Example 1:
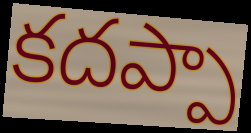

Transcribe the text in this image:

కదప్పా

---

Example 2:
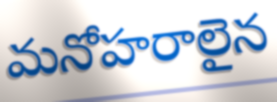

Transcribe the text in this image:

మనోహరాలైన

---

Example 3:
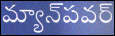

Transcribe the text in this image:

మ్యాన్‌పవర్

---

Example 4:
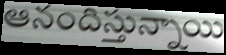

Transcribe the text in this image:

ఆనందిస్తున్నాయి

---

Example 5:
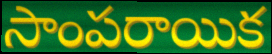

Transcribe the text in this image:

సాంపరాయిక